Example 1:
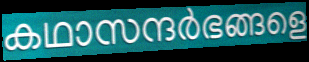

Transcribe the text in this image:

കഥാസന്ദർഭങ്ങളെ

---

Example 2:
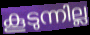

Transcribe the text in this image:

കൂടുന്നില്ല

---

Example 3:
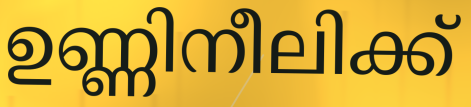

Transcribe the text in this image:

ഉണ്ണിനീലിക്ക്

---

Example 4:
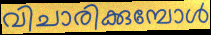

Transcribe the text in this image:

വിചാരിക്കുമ്പോൾ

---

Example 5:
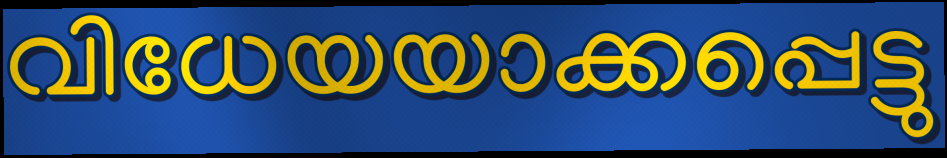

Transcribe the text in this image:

വിധേയയാക്കപ്പെട്ടു